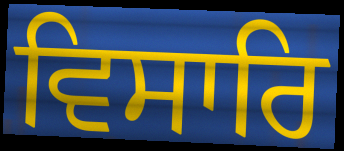
ਵਿਸਾਰਿ